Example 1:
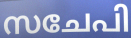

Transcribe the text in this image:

സചേപി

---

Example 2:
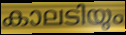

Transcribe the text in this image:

കാലടിയും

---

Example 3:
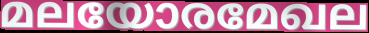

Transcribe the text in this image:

മലയോരമേഖല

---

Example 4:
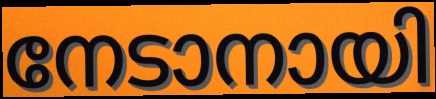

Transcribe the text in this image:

നേടാനായി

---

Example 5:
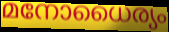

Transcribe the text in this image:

മനോധൈര്യം